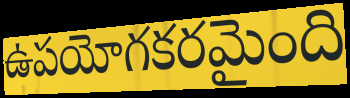
ఉపయోగకరమైంది